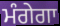
ਮੰਗੇਗਾ